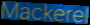
Mackerel